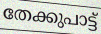
തേക്കുപാട്ട്